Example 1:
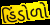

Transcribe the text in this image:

હિંડોળો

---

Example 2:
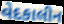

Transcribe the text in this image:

વેદકાલીન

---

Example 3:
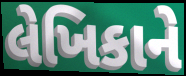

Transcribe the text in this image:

લેખિકાને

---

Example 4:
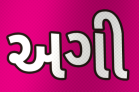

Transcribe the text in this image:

અગી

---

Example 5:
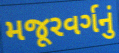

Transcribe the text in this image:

મજૂરવર્ગનું